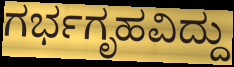
ಗರ್ಭಗೃಹವಿದ್ದು